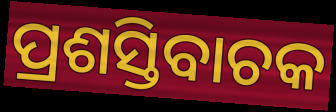
ପ୍ରଶସ୍ତିବାଚକ